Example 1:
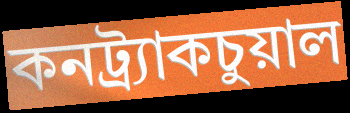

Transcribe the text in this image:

কনট্র্যাকচুয়াল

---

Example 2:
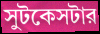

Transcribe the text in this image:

সুটকেসটার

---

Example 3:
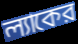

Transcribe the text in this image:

ল্যাকের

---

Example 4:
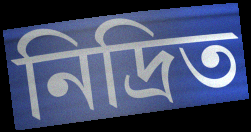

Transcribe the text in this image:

নিদ্রিত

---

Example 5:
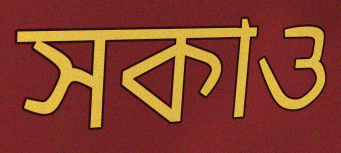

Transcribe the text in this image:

সকাও